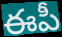
ఈపీ